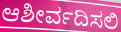
ಆಶೀರ್ವದಿಸಲಿ